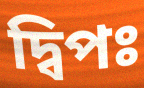
দ্বিপঃ